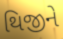
થિજીને